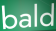
bald